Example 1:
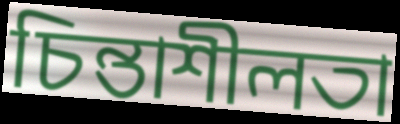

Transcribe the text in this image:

চিন্তাশীলতা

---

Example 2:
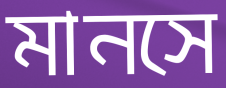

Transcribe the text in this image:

মানসে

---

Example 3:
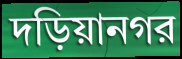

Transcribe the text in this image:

দড়িয়ানগর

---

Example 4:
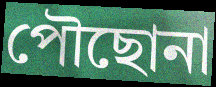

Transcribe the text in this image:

পৌছোনা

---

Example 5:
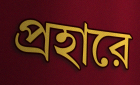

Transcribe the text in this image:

প্রহারে